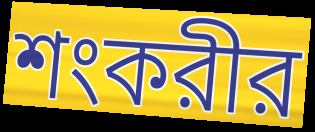
শংকরীর